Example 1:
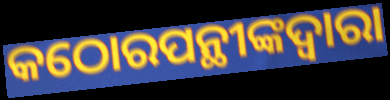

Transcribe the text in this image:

କଠୋରପନ୍ଥୀଙ୍କଦ୍ୱାରା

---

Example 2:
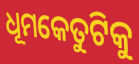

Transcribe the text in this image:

ଧୂମକେତୁଟିକୁ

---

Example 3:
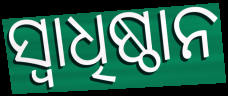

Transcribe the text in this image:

ସ୍ୱାଧିଷ୍ଠାନ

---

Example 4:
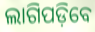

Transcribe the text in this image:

ଲାଗିପଡ଼ିବେ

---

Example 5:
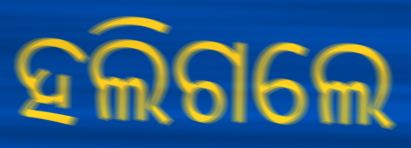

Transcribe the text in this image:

ହଲିଗଲେ